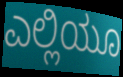
ಎಲ್ಲಿಯೂ